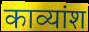
काव्यांश